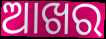
ଆଖର